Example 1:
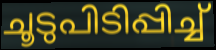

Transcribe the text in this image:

ചൂടുപിടിപ്പിച്ച്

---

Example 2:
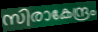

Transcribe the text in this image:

സിരാകേന്ദ്രം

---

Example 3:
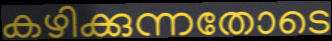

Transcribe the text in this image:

കഴിക്കുന്നതോടെ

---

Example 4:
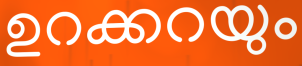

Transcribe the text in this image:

ഉറക്കറയും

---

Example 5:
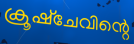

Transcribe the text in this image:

ക്രൂഷ്ചേവിന്റെ